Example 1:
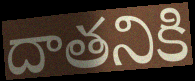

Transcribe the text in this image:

దాతనికి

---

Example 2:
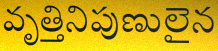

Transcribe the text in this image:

వృత్తినిపుణులైన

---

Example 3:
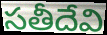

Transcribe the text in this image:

సతీదేవి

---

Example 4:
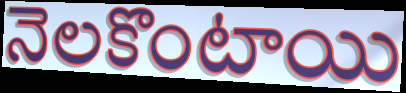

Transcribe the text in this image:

నెలకొంటాయి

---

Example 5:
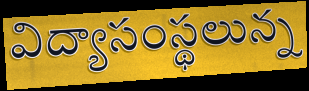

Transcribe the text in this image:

విద్యాసంస్థలున్న